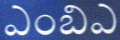
ఎంబిఎ